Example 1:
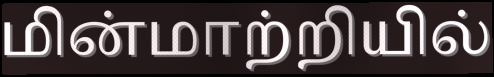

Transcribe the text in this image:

மின்மாற்றியில்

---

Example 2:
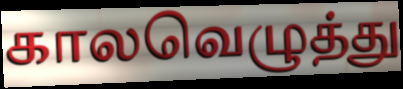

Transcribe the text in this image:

காலவெழுத்து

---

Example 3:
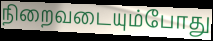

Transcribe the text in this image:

நிறைவடையும்போது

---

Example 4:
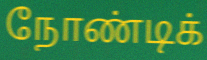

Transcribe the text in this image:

நோண்டிக்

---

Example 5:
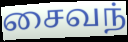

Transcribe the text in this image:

சைவந்